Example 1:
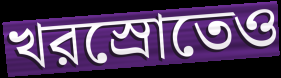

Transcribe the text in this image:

খরস্রোতেও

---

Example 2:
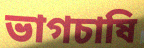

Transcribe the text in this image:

ভাগচাষি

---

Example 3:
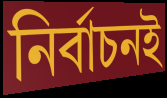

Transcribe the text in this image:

নির্বাচনই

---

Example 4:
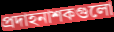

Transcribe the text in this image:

প্রদাহনাশকগুলো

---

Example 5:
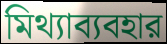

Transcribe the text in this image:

মিথ্যাব্যবহার